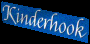
Kinderhook